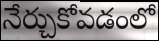
నేర్చుకోవడంలో